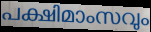
പക്ഷിമാംസവും